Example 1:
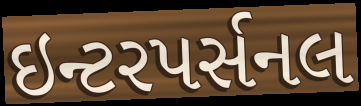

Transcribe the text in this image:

ઇન્ટરપર્સનલ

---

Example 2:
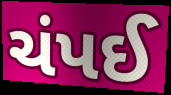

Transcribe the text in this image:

ચંપઈ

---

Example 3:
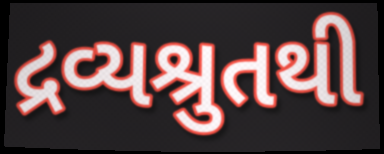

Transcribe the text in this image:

દ્રવ્યશ્રુતથી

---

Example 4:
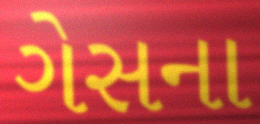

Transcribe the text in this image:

ગેસના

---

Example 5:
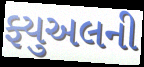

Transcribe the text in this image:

ફ્યુઅલની